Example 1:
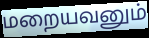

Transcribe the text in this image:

மறையவனும்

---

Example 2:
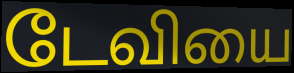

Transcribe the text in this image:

டேவியை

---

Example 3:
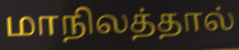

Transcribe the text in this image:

மாநிலத்தால்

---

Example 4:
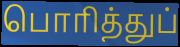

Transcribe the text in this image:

பொரித்துப்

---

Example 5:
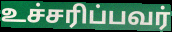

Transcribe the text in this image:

உச்சரிப்பவர்